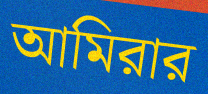
আমিরার